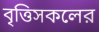
বৃত্তিসকলের